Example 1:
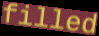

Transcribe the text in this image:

filled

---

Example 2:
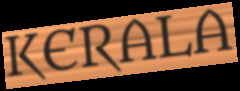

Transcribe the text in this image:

KERALA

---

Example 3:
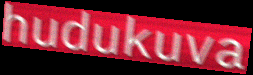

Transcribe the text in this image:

hudukuva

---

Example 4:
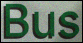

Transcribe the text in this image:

Bus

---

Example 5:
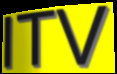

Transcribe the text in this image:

ITV